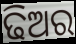
ଢିଅର